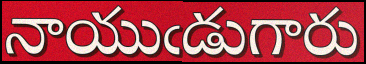
నాయుఁడుగారు